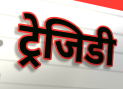
ट्रेजिडी